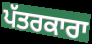
ਪੱਤਰਕਾਰਾ